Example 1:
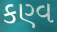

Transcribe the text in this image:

કણ્વ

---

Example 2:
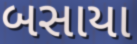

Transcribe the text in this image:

બસાયા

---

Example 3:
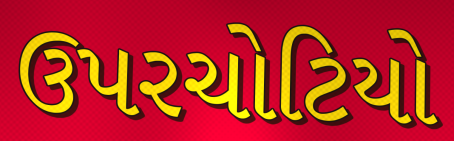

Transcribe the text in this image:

ઉપરચોટિયો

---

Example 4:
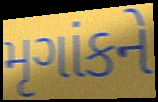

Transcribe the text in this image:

મૃગાંકને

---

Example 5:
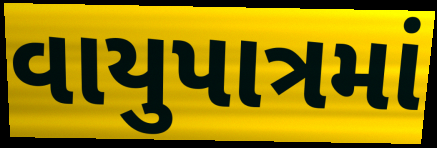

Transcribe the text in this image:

વાયુપાત્રમાં